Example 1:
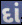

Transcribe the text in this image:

દાં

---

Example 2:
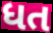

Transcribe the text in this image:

ધત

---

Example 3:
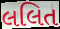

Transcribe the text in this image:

લલિત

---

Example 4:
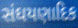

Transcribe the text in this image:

સંઘયણાદિક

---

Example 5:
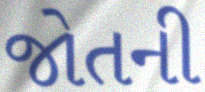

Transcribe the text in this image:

જોતની